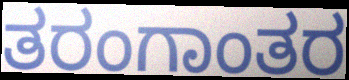
ತರಂಗಾಂತರ